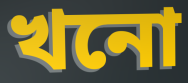
খনো